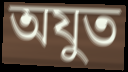
অযুত